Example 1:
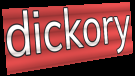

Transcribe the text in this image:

dickory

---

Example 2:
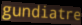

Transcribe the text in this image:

gundiatre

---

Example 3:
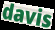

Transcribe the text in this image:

davis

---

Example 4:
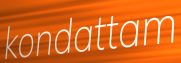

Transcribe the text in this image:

kondattam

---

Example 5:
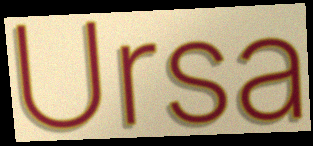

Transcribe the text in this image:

Ursa